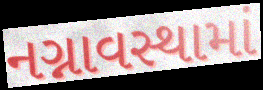
નગ્નાવસ્થામાં